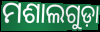
ମଶାଲଗୁଡ଼ା